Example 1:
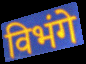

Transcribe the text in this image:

विभंगे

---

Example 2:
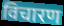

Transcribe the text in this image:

विचारण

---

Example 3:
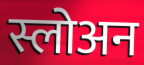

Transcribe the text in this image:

स्लोअन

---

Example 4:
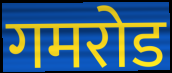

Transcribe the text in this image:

गमरोड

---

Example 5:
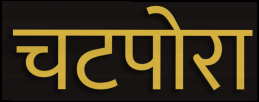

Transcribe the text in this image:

चटपोरा